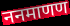
ननमाणण